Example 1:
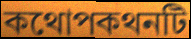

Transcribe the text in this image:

কথোপকথনটি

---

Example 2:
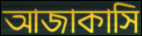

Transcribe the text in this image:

আজাকাসি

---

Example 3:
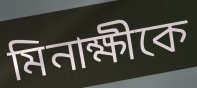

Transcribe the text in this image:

মিনাক্ষীকে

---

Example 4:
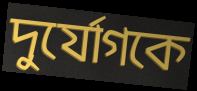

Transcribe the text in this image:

দুর্যোগকে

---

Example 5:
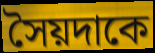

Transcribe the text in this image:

সৈয়দাকে